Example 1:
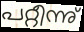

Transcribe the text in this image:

പറ്റീന്നു്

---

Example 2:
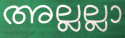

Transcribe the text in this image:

അല്ലല്ലാ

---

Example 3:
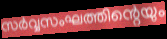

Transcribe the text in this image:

സർവ്വസംഘത്തിന്റെയും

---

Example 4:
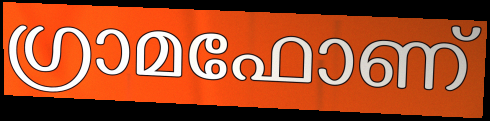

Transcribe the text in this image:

ഗ്രാമഫോണ്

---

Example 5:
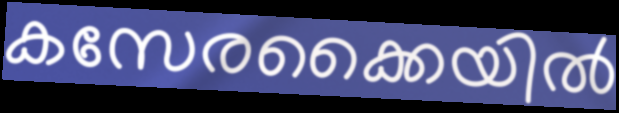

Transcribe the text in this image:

കസേരക്കൈയിൽ